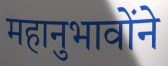
महानुभावोंने